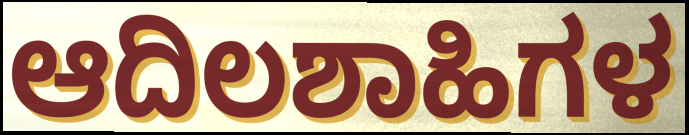
ಆದಿಲಶಾಹಿಗಳ